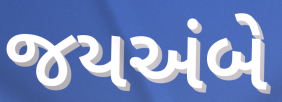
જયઅંબે